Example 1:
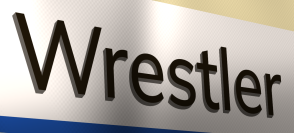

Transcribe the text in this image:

Wrestler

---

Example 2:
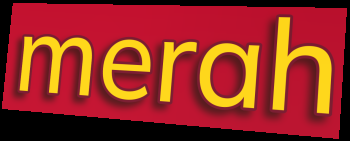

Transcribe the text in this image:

merah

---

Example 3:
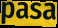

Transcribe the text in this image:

pasa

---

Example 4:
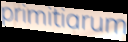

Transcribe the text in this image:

primitiarum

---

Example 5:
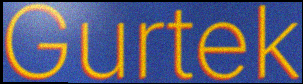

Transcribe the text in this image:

Gurtek